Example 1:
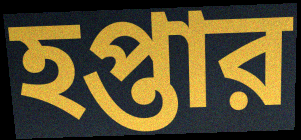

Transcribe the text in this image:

হপ্তার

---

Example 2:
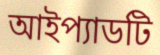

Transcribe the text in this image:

আইপ্যাডটি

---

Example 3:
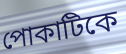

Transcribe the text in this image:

পোকাটিকে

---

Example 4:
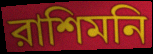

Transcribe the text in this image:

রাশিমনি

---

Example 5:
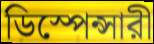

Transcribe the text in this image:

ডিস্পেন্সারী